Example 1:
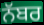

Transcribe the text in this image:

ਨੱਬਰ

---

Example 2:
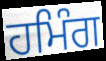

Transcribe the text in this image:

ਹਮਿੰਗ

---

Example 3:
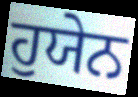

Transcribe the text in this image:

ਹੁਯੇਨ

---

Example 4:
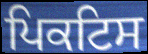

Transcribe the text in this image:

ਪਿਕਟਿਸ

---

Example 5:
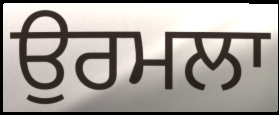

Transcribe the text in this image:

ਉਰਮਲਾ